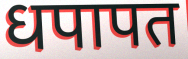
धपापत